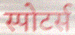
स्पोटर्स